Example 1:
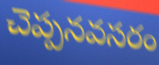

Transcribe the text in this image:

చెప్పనవసరం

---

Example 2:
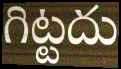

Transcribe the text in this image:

గిట్టదు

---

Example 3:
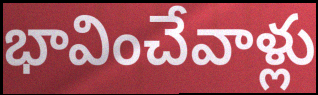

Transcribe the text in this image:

భావించేవాళ్లు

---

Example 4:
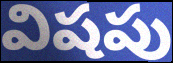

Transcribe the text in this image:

విషపు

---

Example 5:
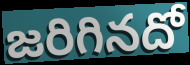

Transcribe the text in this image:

జరిగినదో